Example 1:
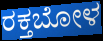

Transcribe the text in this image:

ರಕ್ತಬೋಳ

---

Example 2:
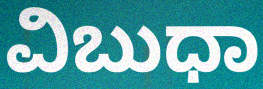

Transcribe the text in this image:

ವಿಬುಧಾ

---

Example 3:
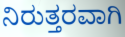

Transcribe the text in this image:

ನಿರುತ್ತರವಾಗಿ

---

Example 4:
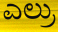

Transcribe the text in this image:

ಎಲ್ರು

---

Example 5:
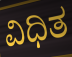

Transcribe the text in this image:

ವಿಧಿತ